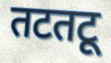
तटतटू